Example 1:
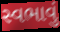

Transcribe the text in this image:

સ્વભાવું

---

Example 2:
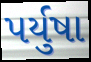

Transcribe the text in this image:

પર્યુષા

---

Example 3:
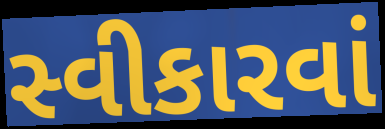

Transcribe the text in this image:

સ્વીકારવાં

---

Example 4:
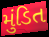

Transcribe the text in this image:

મુંડિત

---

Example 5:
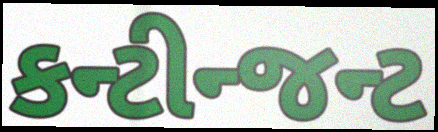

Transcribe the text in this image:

કન્ટીન્જન્ટ